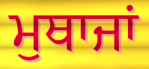
ਮੁਥਾਜਾਂ